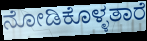
ನೋಡಿಕೊಳ್ಳತಾರೆ